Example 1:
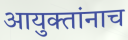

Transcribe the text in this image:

आयुक्तांनाच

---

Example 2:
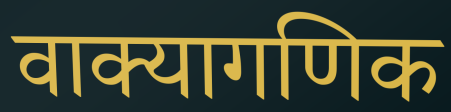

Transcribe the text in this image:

वाक्यागणिक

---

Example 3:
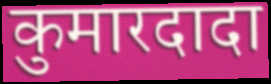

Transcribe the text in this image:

कुमारदादा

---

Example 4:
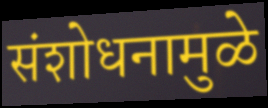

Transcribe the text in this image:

संशोधनामुळे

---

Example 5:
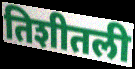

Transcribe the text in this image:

तिशीतली